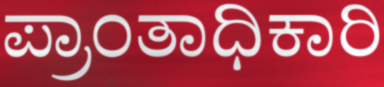
ಪ್ರಾಂತಾಧಿಕಾರಿ